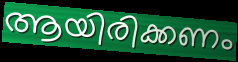
ആയിരിക്കണം